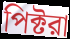
পিক্টরা